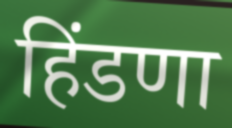
हिंडणा